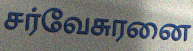
சர்வேசுரனை